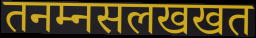
तनम्नसलखखत